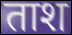
ताश